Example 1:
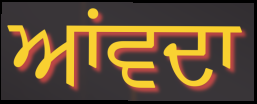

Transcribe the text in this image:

ਆਂਵਦਾ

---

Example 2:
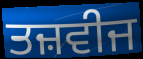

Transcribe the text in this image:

ਤਜ਼ਵੀਜ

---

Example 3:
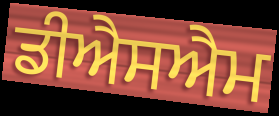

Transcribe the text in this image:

ਡੀਐਸਐਮ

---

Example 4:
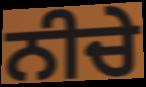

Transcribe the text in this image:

ਨੀਚੇ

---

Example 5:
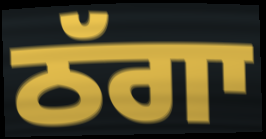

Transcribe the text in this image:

ਠੱਗਾ